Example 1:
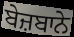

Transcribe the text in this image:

ਬੇਜ਼ਬਾਨੇ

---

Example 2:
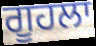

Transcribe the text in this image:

ਗੂਹਲਾ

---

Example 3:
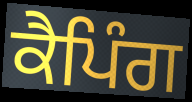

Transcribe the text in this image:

ਕੈਪਿੰਗ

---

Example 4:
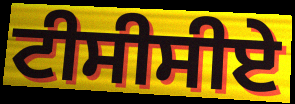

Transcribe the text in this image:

ਟੀਸੀਸੀਏ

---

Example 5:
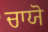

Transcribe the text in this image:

ਚਾਯੋ